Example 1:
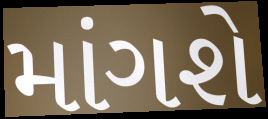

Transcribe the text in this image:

માંગશે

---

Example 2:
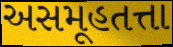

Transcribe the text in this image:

અસમૂહતત્તા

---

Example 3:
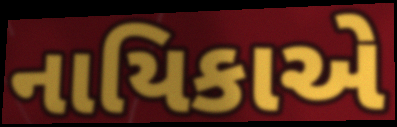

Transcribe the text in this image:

નાયિકાએ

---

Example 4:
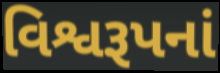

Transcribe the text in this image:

વિશ્વરૂપનાં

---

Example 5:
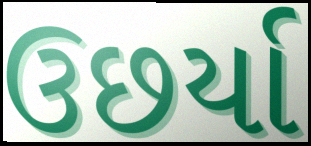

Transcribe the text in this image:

ઉછર્યા